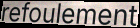
refoulement